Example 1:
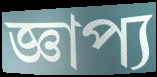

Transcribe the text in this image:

জ্ঞাপ্য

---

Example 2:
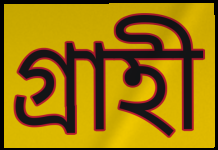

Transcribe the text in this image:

গ্রাহী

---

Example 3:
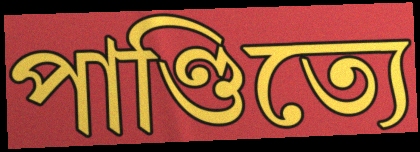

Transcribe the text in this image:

পাণ্ডিত্যে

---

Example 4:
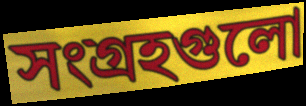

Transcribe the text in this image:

সংগ্রহগুলো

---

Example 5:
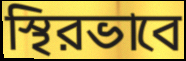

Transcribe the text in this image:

স্থিরভাবে